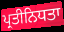
ਪ੍ਰਤੀਨਿਧਤਾ